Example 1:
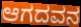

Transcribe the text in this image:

ಆಗದವನ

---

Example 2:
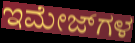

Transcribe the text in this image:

ಇಮೇಜ್‌ಗಳ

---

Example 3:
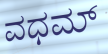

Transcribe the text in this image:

ವಧಮ್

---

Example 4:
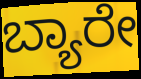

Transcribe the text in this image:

ಬ್ಯಾರೇ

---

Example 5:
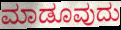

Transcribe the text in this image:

ಮಾಡೂವುದು